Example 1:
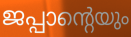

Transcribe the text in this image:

ജപ്പാന്റെയും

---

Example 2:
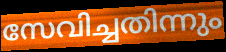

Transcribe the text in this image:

സേവിച്ചതിന്നും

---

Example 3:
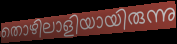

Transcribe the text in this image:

തൊഴിലാളിയായിരുന്നു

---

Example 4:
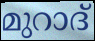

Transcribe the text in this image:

മുറാദ്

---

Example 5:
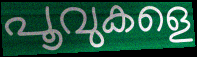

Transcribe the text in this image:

പൂവുകളെ